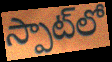
స్పాట్‌లో